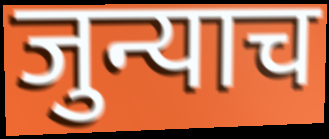
जुन्याच